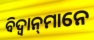
ବିଦ୍ୱାନ୍‌ମାନେ